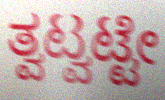
ತ್ವಟ್ವಟ್ಟೇ